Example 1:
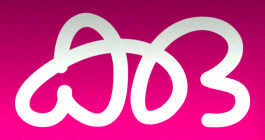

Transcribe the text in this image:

ക്കു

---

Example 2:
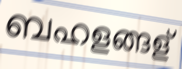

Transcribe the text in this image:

ബഹളങ്ങള്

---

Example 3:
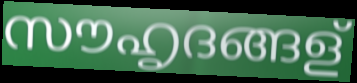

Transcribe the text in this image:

സൗഹൃദങ്ങള്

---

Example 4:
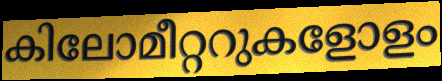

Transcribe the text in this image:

കിലോമീറ്ററുകളോളം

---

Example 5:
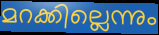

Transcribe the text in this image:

മറക്കില്ലെന്നും